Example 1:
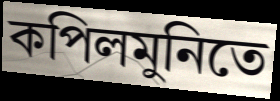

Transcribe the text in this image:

কপিলমুনিতে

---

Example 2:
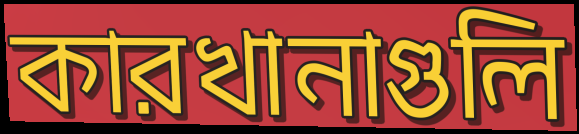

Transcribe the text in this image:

কারখানাগুলি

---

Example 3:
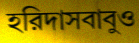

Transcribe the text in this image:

হরিদাসবাবুও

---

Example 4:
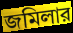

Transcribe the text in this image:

জমিলার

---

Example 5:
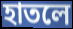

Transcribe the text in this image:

হাতলে